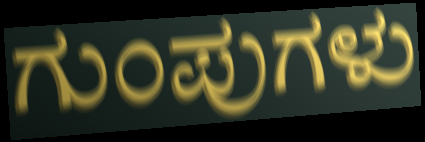
ಗುಂಪುಗಳು